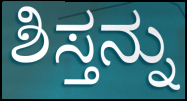
ಶಿಸ್ತನ್ನು